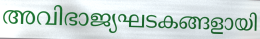
അവിഭാജ്യഘടകങ്ങളായി